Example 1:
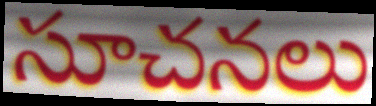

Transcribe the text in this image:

సూచనలు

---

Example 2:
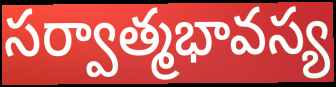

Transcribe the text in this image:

సర్వాత్మభావస్య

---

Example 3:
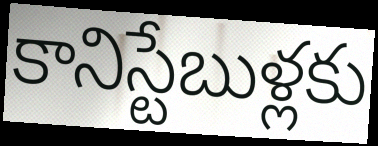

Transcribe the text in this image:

కానిస్టేబుళ్లకు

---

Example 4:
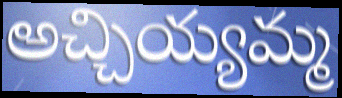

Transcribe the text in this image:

అచ్చియ్యమ్మ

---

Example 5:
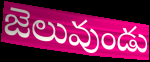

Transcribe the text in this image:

జెలువుండు